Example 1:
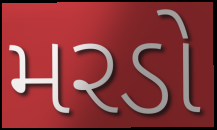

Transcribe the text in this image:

મરડો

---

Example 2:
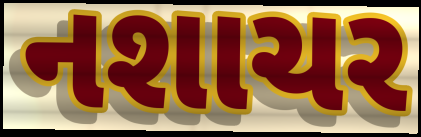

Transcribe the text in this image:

નશાચર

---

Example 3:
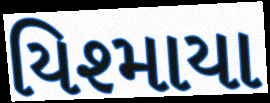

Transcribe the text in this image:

યિશ્માયા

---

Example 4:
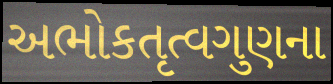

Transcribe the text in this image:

અભોકતૃત્વગુણના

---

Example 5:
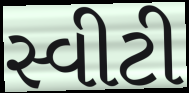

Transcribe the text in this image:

સ્વીટી